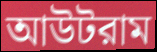
আউটরাম